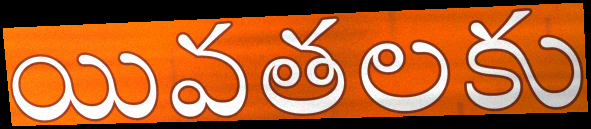
యివతలకు